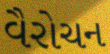
વૈરોચન